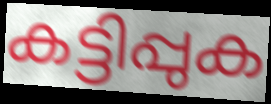
കട്ടിപ്പുക